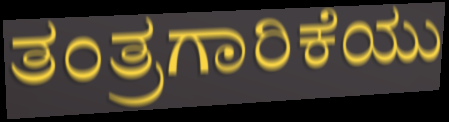
ತಂತ್ರಗಾರಿಕೆಯು